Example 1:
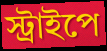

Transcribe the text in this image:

স্ট্রাইপে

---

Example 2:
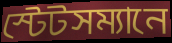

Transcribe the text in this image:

স্টেটসম্যানে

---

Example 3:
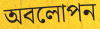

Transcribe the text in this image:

অবলোপন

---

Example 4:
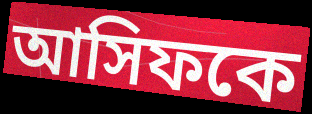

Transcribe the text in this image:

আসিফকে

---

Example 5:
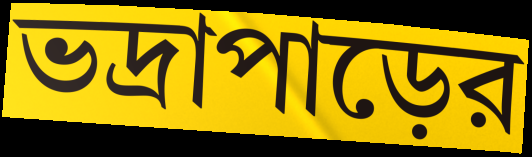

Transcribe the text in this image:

ভদ্রাপাড়ের